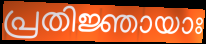
പ്രതിജ്ഞായാഃ